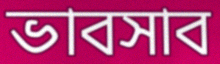
ভাবসাব